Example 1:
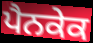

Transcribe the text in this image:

ਪੈਨਕੇਕ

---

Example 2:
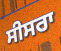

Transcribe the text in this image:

ਸੀਸਰਾ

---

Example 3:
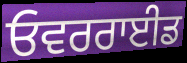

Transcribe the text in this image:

ਓਵਰਰਾਈਡ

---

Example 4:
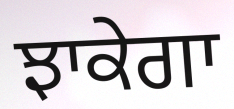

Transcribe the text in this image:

ਝਾਕੇਗਾ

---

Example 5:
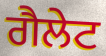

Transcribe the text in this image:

ਗੈਲੇਟ